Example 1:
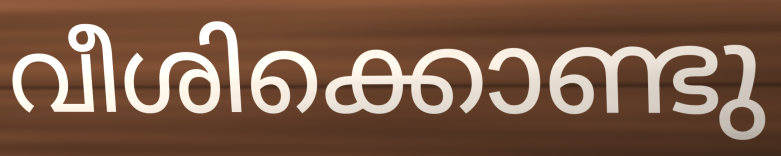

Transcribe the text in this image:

വീശിക്കൊണ്ടു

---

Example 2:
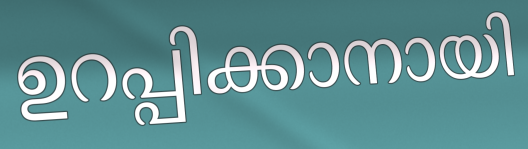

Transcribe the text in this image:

ഉറപ്പിക്കാനായി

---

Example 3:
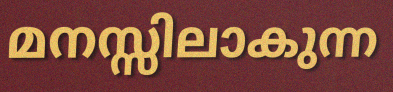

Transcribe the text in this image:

മനസ്സിലാകുന്ന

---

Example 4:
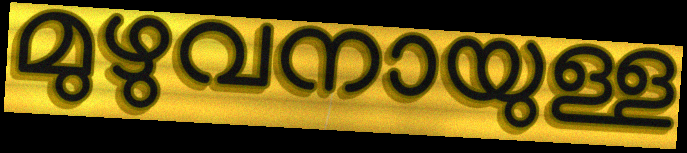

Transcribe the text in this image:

മുഴുവനായുള്ള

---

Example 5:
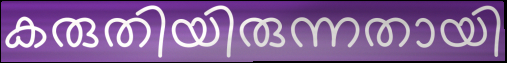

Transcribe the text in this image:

കരുതിയിരുന്നതായി